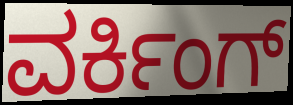
ವರ್ಕಿಂಗ್